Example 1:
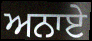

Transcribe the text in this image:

ਅਨਾਏ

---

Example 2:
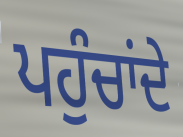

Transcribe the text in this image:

ਪਹੁੰਚਾਂਦੇ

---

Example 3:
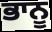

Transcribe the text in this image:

ਭਾਨੂ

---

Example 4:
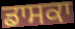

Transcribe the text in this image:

ਡਾਸਕਾ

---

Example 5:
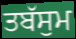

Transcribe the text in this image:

ਤਬੱਸੁਮ